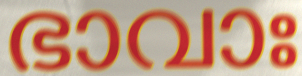
ഭാവാഃ